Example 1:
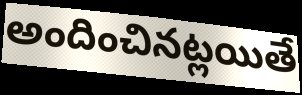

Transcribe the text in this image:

అందించినట్లయితే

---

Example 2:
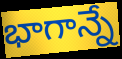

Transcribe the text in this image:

భాగాన్నే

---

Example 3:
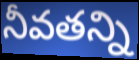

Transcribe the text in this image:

నీవతన్ని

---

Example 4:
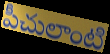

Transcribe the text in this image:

పీచులాంటి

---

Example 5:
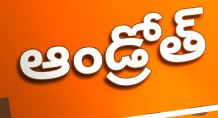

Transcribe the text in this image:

ఆండ్రోత్